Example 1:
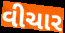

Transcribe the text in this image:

વીચાર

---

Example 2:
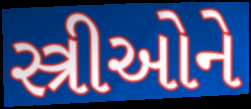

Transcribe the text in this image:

સ્ત્રીઓને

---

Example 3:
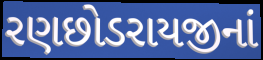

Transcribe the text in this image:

રણછોડરાયજીનાં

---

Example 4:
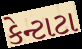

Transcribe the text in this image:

કેન્ટાટા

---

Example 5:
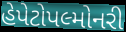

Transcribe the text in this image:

હેપેટોપલ્મોનરી